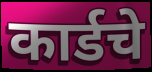
कार्डचे